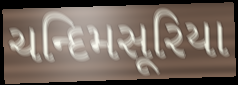
ચન્દિમસૂરિયા